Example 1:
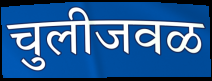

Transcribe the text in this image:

चुलीजवळ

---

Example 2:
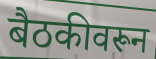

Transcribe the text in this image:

बैठकीवरून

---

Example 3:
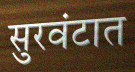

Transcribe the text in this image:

सुरवंटात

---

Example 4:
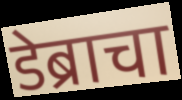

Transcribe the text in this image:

डेब्राचा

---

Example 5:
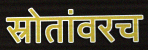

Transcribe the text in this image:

स्रोतांवरच